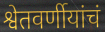
श्वेतवर्णीयांचं